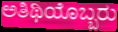
ಅತಿಥಿಯೊಬ್ಬರು